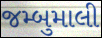
જમ્બુમાલી